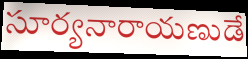
సూర్యనారాయణుడే